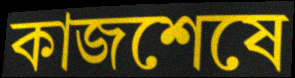
কাজশেষে